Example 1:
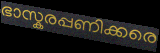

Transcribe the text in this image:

ഭാസ്കരപ്പണിക്കരെ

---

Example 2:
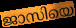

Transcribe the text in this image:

ജാസിയെ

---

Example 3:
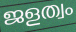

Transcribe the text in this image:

ജളത്വം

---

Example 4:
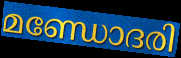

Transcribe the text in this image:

മണ്ഡോദരി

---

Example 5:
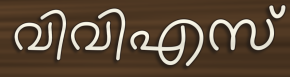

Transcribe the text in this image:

വിവിഎസ്